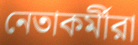
নেতাকর্মীরা